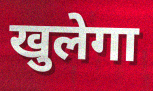
खुलेगा